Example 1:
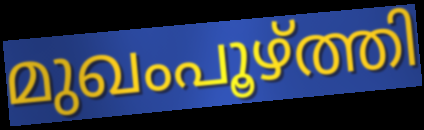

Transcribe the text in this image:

മുഖംപൂഴ്ത്തി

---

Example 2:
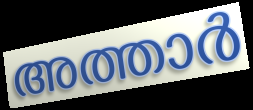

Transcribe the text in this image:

അത്താർ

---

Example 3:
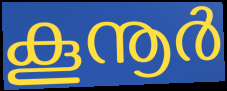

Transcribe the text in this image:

കൂനൂർ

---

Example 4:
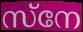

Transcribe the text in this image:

സ്നേ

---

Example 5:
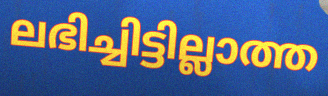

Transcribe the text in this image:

ലഭിച്ചിട്ടില്ലാത്ത